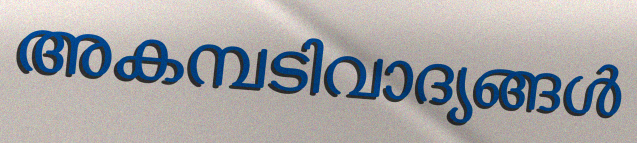
അകമ്പടിവാദ്യങ്ങൾ